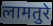
लामतुरे